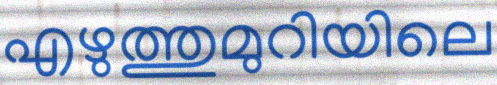
എഴുത്തുമുറിയിലെ